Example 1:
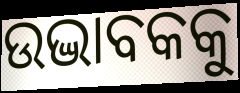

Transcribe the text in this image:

ଉଦ୍ଭାବକକୁ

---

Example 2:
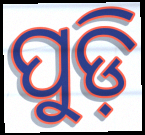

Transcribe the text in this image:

ପୁଡ଼ି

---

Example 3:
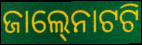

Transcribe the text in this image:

ଜାଲ୍‍ନୋଟଟି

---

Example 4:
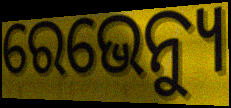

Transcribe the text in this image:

ରେଭେନ୍ୟୁ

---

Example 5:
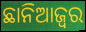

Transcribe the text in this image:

ଛାନିଆଜ୍ୱର